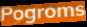
Pogroms